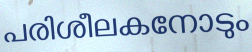
പരിശീലകനോടും